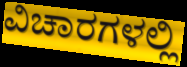
ವಿಚಾರಗಳಲ್ಲಿ